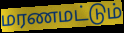
மரணமட்டும்